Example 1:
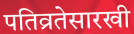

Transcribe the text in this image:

पतिव्रतेसारखी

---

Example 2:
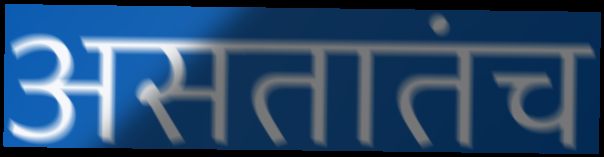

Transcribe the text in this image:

असतातंच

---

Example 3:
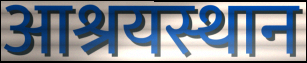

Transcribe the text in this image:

आश्रयस्थान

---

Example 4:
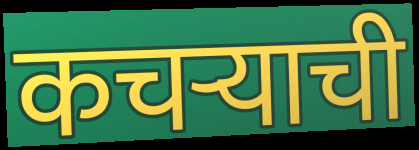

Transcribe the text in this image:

कचऱ्याची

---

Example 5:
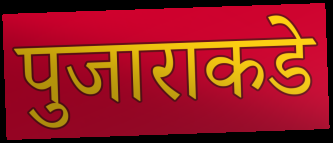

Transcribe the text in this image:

पुजाराकडे